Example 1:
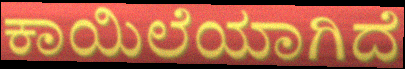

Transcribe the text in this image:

ಕಾಯಿಲೆಯಾಗಿದೆ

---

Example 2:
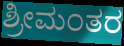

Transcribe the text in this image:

ಶ್ರೀಮಂತರ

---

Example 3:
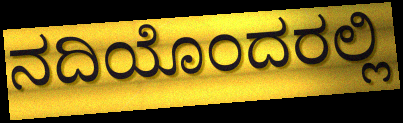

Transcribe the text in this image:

ನದಿಯೊಂದರಲ್ಲಿ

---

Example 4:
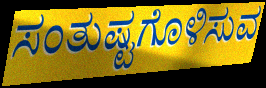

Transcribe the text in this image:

ಸಂತುಷ್ಟಗೊಳಿಸುವ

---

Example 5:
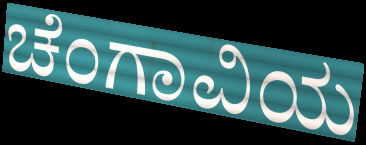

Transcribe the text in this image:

ಚೆಂಗಾವಿಯ